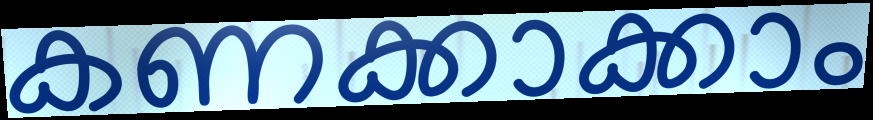
കണക്കാക്കാം